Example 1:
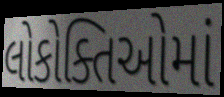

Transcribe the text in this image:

લોકોક્તિઓમાં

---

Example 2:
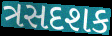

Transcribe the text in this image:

ત્રસદશક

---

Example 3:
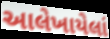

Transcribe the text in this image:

આલેખાયેલાં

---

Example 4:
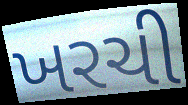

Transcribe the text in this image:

ખરચી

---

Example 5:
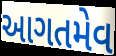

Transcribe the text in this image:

આગતમેવ